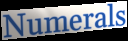
Numerals